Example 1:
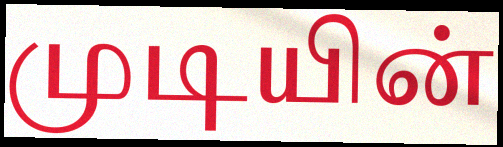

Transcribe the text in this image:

முடியின்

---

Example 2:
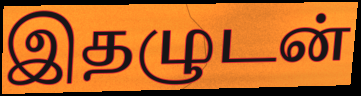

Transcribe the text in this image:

இதழுடன்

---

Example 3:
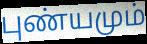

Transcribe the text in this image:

புண்யமும்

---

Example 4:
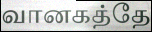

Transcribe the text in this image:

வானகத்தே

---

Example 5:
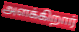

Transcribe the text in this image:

அளக்கிறார்